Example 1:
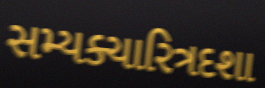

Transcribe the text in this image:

સમ્યક્ચારિત્રદશા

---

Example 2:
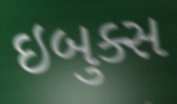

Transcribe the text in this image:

ઇબુક્સ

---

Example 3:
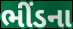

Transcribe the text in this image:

ભીંડના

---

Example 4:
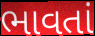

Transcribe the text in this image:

ભાવતાં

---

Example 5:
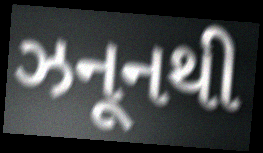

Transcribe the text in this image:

ઝનૂનથી